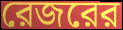
রেজরের